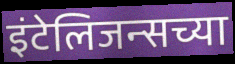
इंटेलिजन्सच्या